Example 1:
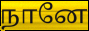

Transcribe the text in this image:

நானே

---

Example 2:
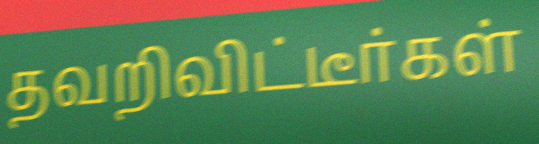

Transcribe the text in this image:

தவறிவிட்டீர்கள்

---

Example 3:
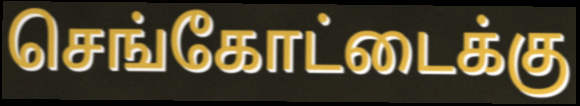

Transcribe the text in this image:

செங்கோட்டைக்கு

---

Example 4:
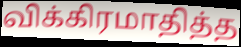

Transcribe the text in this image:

விக்கிரமாதித்த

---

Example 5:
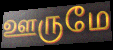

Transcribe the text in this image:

ஊருமே